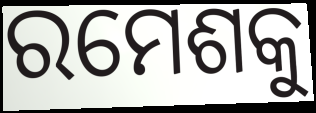
ରମେଶକୁ